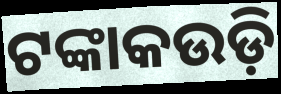
ଟଙ୍କାକଉଡ଼ି